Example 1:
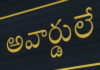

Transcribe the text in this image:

అవార్డులే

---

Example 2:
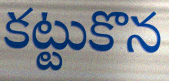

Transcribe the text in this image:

కట్టుకొన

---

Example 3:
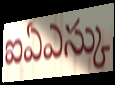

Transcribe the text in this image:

ఐఏఎస్కు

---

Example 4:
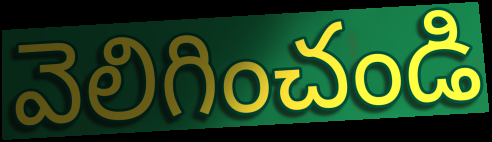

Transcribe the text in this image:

వెలిగించండి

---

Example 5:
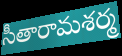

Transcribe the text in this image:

సీతారామశర్మ